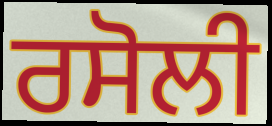
ਰਸੋਲੀ